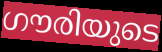
ഗൗരിയുടെ